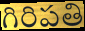
గిరిపతి